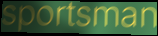
sportsman